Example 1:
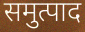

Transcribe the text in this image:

समुत्पाद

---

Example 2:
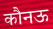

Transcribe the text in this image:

कौनऊ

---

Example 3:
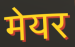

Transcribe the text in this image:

मेयर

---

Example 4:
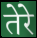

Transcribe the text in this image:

तेरे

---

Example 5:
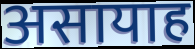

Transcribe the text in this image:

असायाह